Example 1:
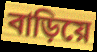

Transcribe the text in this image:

বাড়িয়ে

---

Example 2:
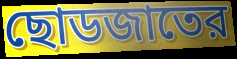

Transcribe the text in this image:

ছোডজাতের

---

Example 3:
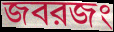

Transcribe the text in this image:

জবরজং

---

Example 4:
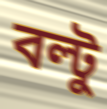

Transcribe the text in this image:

বল্টু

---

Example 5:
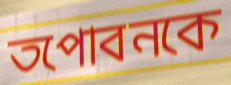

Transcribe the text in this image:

তপোবনকে